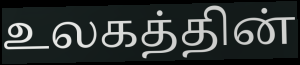
உலகத்தின்